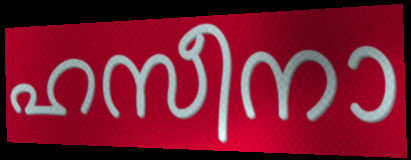
ഹസീനാ